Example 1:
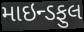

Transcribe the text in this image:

માઇન્ડફુલ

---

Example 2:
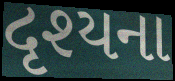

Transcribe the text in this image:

દૃશ્યના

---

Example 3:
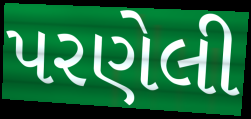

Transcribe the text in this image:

પરણેલી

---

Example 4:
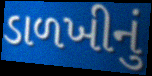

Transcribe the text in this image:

ડાળખીનું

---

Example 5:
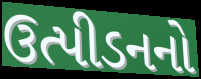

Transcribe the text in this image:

ઉત્પીડનનો